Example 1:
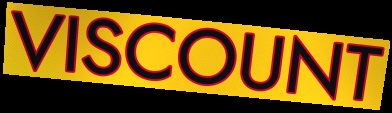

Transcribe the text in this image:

VISCOUNT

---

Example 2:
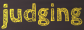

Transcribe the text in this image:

judging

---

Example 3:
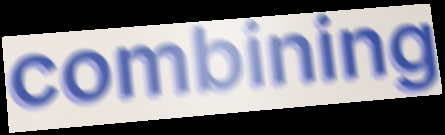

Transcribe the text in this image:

combining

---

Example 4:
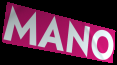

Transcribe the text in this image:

MANO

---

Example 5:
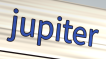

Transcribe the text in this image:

jupiter